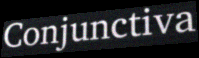
Conjunctiva